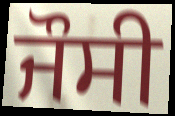
ਜੌਸੀ